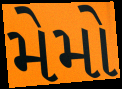
મેમો